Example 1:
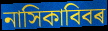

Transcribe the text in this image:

নাসিকাবিবৰ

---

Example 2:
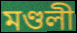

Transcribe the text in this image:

মণ্ডলী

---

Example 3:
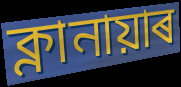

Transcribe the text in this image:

ক্নানায়াৰ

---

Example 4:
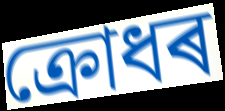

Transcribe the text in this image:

ক্ৰোধৰ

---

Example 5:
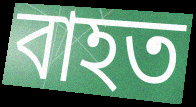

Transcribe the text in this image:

বাহত